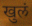
खुलं